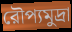
রৌপ্যমুদ্রা